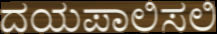
ದಯಪಾಲಿಸಲಿ